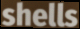
shells